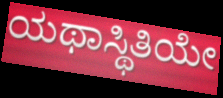
ಯಥಾಸ್ಥಿತಿಯೇ